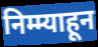
निम्म्याहून